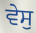
ਵੇਸੁ